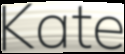
Kate